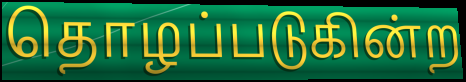
தொழப்படுகின்ற